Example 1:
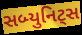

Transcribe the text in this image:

સબ્યુનિટ્સ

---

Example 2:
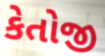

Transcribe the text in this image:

કેતોજી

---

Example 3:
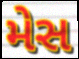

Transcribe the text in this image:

મેસ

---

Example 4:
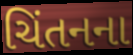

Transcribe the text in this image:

ચિંતનના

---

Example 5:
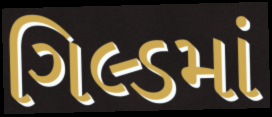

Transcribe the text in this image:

ગિલ્ડમાં